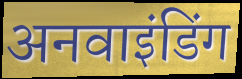
अनवाइंडिंग